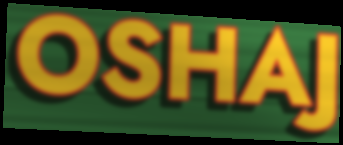
OSHAJ